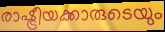
രാഷ്ട്രീയക്കാരുടെയും